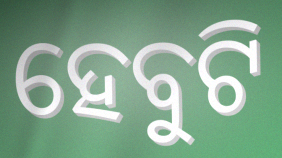
ହେବୁଟି